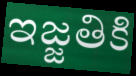
ఇజ్జతికి